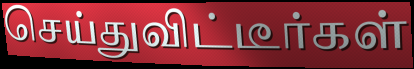
செய்துவிட்டீர்கள்